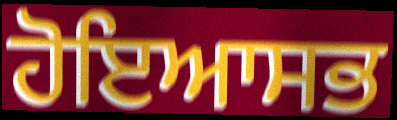
ਹੋਇਆਸਭ